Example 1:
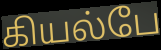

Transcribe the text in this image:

கியல்பே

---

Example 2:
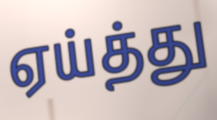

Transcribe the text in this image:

ஏய்த்து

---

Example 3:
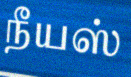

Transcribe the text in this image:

நீயஸ்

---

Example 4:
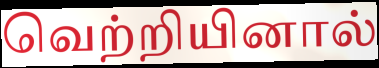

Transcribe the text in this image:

வெற்றியினால்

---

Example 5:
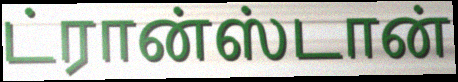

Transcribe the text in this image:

ட்ரான்ஸ்டான்